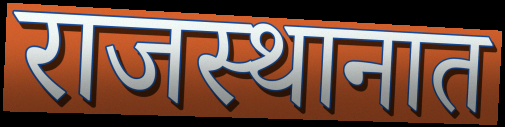
राजस्थानात